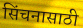
सिंचनासाठी